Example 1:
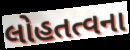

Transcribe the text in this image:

લોહતત્વના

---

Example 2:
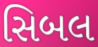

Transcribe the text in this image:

સિબલ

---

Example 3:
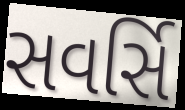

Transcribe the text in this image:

સવર્સિ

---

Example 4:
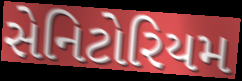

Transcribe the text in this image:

સેનિટોરિયમ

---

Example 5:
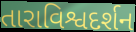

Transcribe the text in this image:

તારાવિશ્વદર્શન